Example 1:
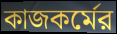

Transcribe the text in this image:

কাজকর্মের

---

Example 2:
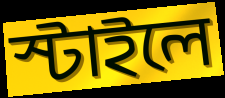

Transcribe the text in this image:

স্টাইলে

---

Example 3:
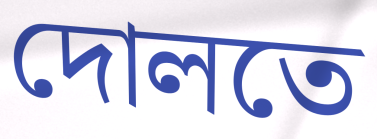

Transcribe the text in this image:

দোলতে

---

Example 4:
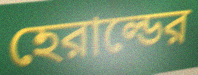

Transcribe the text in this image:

হেরাল্ডের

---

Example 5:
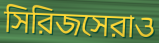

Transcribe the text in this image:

সিরিজসেরাও